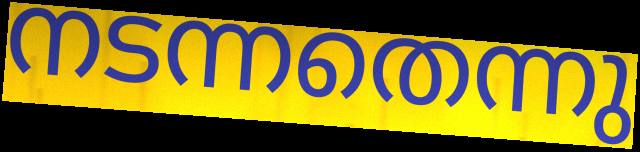
നടന്നതെന്നു